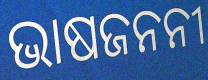
ଭାଷଜନନୀ